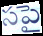
సపై